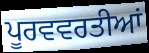
ਪੂਰਵਵਰਤੀਆਂ